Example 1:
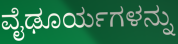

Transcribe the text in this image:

ವೈಢೂರ್ಯಗಳನ್ನು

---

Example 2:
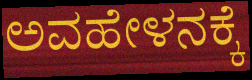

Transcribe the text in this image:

ಅವಹೇಳನಕ್ಕೆ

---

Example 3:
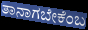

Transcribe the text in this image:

ತಾನಾಗಬೇಕೆಂಬ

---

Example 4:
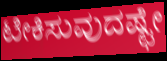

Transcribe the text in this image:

ಟೀಕಿಸುವುದಷ್ಟೇ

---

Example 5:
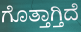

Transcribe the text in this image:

ಗೊತ್ತಾಗ್ತಿದೆ